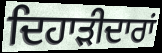
ਦਿਹਾੜੀਦਾਰਾਂ